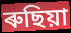
ৰুছিয়া